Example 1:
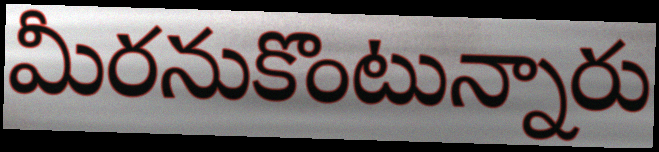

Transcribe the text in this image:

మీరనుకొంటున్నారు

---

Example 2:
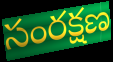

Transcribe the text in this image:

సంరక్షణ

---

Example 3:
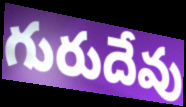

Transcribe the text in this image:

గురుదేవు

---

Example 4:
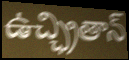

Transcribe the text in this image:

ఉచ్ఛ్రితాన్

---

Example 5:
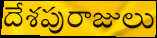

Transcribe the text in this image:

దేశపురాజులు